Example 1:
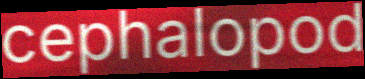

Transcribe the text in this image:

cephalopod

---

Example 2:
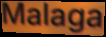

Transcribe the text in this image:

Malaga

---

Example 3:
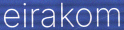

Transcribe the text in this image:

eirakom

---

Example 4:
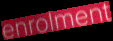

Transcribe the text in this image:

enrolment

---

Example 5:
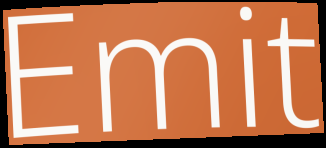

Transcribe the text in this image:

Emit